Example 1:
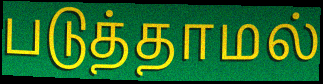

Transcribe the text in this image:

படுத்தாமல்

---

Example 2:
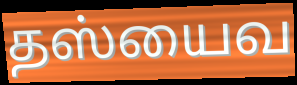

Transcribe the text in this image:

தஸ்யைவ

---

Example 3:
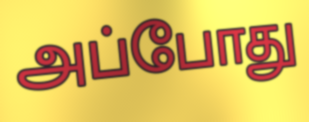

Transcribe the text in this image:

அப்போது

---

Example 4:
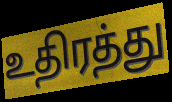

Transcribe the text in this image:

உதிரத்து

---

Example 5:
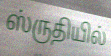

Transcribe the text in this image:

ஸ்ருதியில்